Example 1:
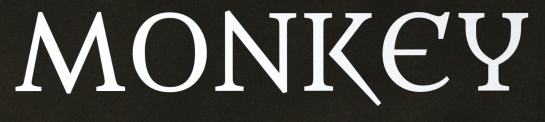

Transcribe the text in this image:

MONKEY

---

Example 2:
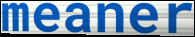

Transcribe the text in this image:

meaner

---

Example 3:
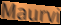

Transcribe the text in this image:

Maurvi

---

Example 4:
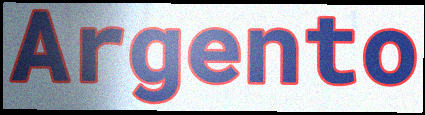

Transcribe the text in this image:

Argento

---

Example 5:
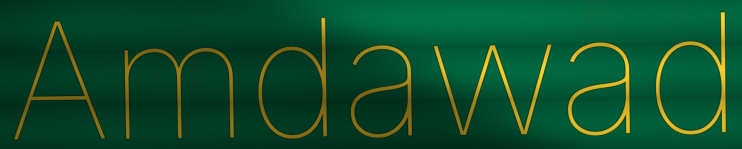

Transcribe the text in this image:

Amdawad